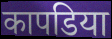
कापडिया